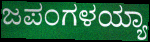
ಜಪಂಗಳಯ್ಯಾ